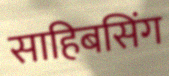
साहिबसिंग